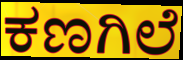
ಕಣಗಿಲೆ